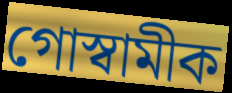
গোস্বামীক